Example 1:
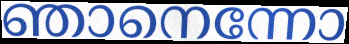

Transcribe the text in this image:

ഞാനെന്നോ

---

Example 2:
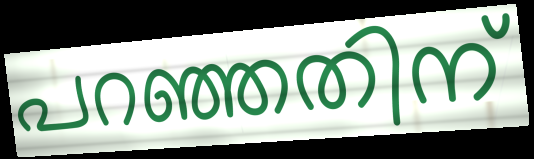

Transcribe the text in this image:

പറഞ്ഞതിന്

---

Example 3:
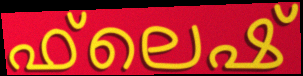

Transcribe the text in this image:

ഫ്‌ലെഷ്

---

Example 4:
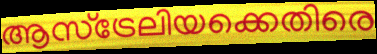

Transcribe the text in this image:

ആസ്ട്രേലിയക്കെതിരെ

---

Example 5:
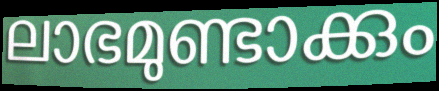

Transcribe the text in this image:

ലാഭമുണ്ടാക്കും